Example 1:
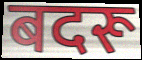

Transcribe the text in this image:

बदरू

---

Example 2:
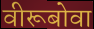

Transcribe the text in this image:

वीरूबोवा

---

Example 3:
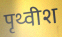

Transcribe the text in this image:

पृथ्वीश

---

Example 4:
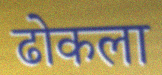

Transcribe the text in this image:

ढोकला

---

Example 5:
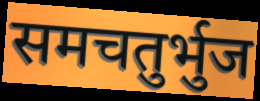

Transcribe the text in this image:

समचतुर्भुज